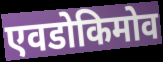
एवडोकिमोव